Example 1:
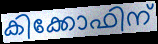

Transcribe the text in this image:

കിക്കോഫിന്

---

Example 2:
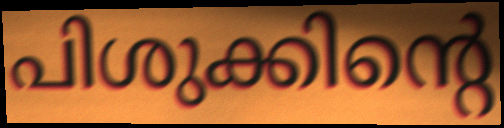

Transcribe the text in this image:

പിശുക്കിന്റെ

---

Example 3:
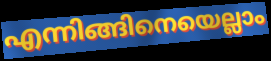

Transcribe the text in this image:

എന്നിങ്ങിനെയെല്ലാം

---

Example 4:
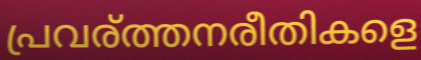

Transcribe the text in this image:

പ്രവര്ത്തനരീതികളെ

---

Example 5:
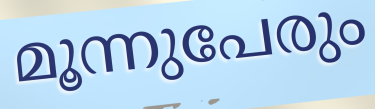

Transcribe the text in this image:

മൂന്നുപേരും